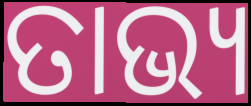
ତାଭ୍ୟ